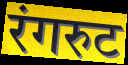
रंगरुट